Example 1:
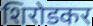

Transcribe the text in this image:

शिरोडकर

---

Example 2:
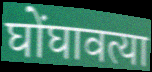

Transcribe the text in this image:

घोंघावत्या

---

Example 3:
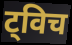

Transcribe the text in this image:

ट्विच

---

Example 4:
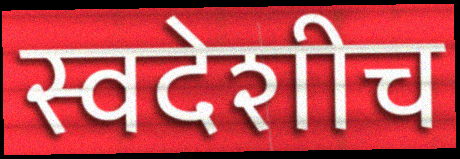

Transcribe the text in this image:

स्वदेशीच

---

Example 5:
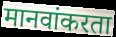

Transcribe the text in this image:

मानवांकरता